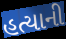
હત્યાની